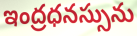
ఇంద్రధనస్సును